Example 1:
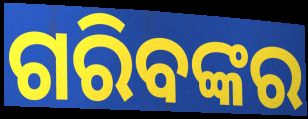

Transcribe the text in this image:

ଗରିବଙ୍କର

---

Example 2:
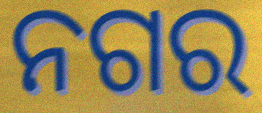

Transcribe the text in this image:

ନଗର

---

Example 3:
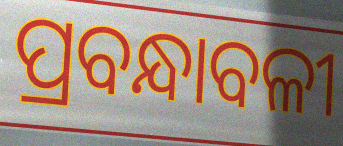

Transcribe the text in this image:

ପ୍ରବନ୍ଧାବଳୀ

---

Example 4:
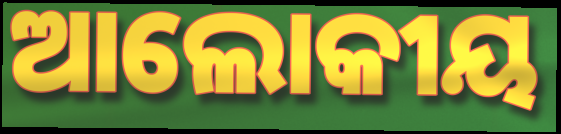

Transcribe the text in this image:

ଆଲୋକୀୟ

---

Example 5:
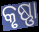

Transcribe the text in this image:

କୃଷ୍ଣା